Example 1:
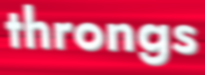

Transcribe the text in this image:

throngs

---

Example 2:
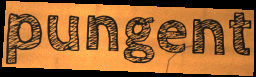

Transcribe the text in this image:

pungent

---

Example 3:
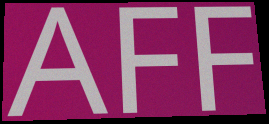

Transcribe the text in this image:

AFF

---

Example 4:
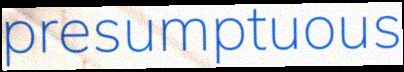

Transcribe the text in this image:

presumptuous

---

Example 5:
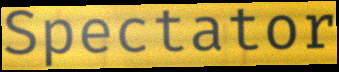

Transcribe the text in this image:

Spectator